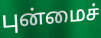
புன்மைச்